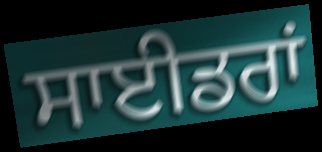
ਸਾਈਡਰਾਂ